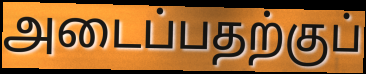
அடைப்பதற்குப்